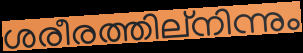
ശരീരത്തില്നിന്നും